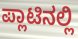
ಪ್ಲಾಟಿನಲ್ಲಿ